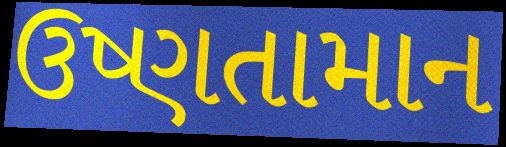
ઉષ્ણતામાન